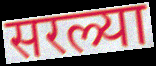
सरल्या